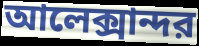
আলেক্সান্দর